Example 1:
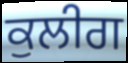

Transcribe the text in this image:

ਕੁਲੀਗ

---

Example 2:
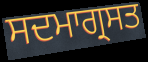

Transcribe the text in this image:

ਸਦਮਾਗ੍ਰਸਤ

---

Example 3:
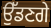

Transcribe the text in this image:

ਉੱਡਣਗੇ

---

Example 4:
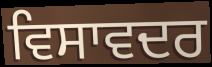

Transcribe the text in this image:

ਵਿਸਾਵਦਰ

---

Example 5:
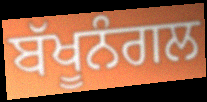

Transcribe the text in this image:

ਬੱਖੂਨੰਗਲ